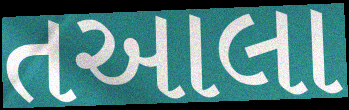
તઆલા